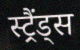
स्ट्रैंड्स